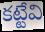
కట్టేవి